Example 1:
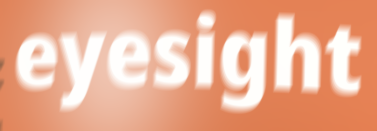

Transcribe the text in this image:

eyesight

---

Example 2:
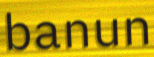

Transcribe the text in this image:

banun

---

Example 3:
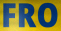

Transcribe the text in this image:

FRO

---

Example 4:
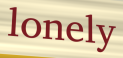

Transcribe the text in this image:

lonely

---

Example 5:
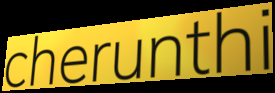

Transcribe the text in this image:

cherunthi